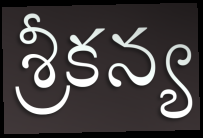
శ్రీకన్య